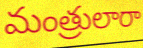
మంత్రులారా